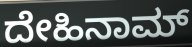
ದೇಹಿನಾಮ್